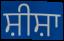
ਸ਼ੀਸ਼ਾ